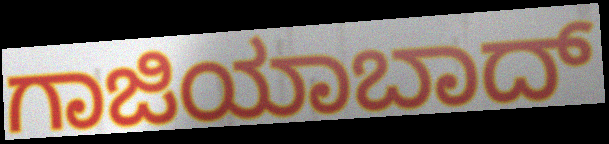
ಗಾಜಿಯಾಬಾದ್